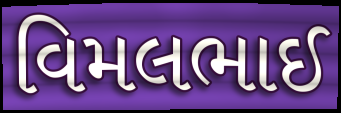
વિમલભાઈ